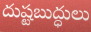
దుష్టబుద్ధులు